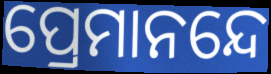
ପ୍ରେମାନନ୍ଦେ